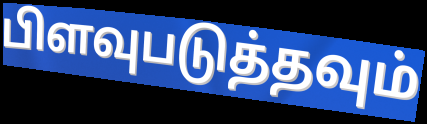
பிளவுபடுத்தவும்